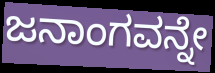
ಜನಾಂಗವನ್ನೇ